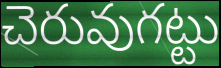
చెరువుగట్టు